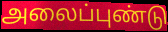
அலைப்புண்டு